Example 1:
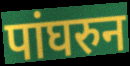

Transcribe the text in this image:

पांघरुन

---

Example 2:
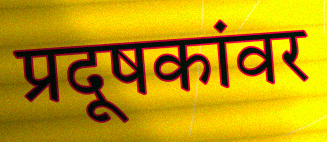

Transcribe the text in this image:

प्रदूषकांवर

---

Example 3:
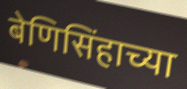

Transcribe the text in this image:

बेणिसिंहाच्या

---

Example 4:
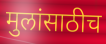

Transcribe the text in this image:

मुलांसाठीच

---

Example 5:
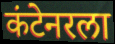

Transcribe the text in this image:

कंटेनरला